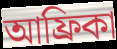
আফ্রিকা